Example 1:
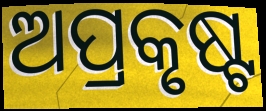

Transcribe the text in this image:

ଅପ୍ରକୃଷ୍ଟ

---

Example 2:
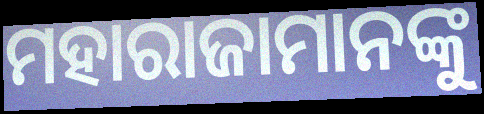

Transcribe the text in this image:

ମହାରାଜାମାନଙ୍କୁ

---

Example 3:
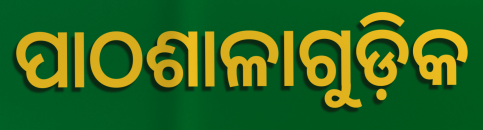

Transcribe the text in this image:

ପାଠଶାଳାଗୁଡ଼ିକ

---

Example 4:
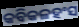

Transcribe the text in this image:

କବିକଳହଂସ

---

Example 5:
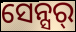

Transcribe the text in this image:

ସେନ୍ସର୍